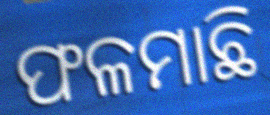
ଫଳମାଛି